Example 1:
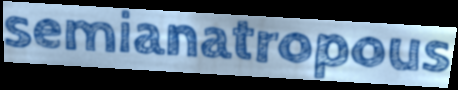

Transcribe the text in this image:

semianatropous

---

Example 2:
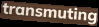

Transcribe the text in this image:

transmuting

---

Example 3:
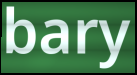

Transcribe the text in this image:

bary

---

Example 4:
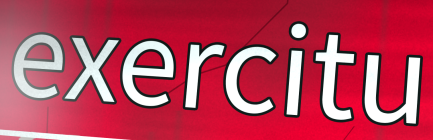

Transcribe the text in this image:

exercitu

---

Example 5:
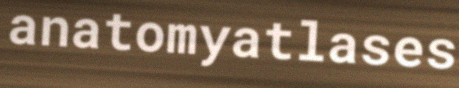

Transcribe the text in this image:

anatomyatlases